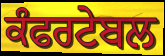
ਕੰਫਰਟੇਬਲ